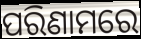
ପରିଣାମରେ